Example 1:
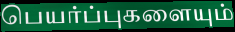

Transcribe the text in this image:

பெயர்ப்புகளையும்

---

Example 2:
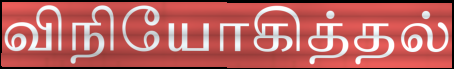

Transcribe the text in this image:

விநியோகித்தல்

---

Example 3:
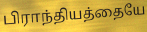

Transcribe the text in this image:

பிராந்தியத்தையே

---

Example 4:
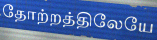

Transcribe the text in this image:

தோற்றத்திலேயே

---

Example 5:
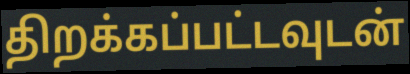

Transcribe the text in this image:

திறக்கப்பட்டவுடன்